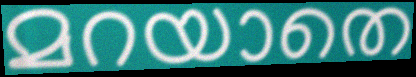
മറയാതെ